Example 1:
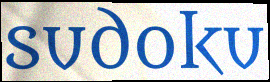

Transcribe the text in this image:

sudoku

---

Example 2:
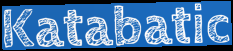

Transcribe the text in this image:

Katabatic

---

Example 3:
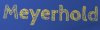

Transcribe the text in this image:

Meyerhold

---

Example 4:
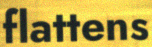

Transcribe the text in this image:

flattens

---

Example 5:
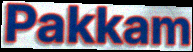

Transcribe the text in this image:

Pakkam